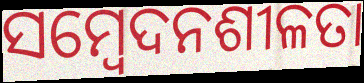
ସମ୍ଵେଦନଶୀଳତା